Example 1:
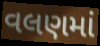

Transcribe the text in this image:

વલણમાં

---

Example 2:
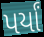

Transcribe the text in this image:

પર્યાં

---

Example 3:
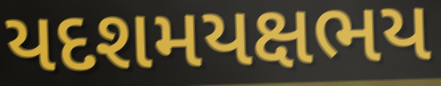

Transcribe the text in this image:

યદશમયક્ષભય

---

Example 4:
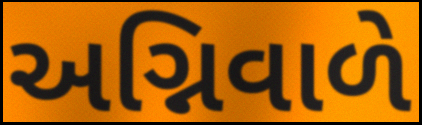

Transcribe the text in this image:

અગ્નિવાળે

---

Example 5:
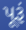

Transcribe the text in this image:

પૂરૂં